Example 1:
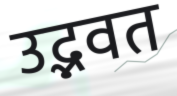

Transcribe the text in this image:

उद्भवत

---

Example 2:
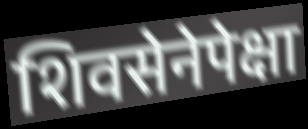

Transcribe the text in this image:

शिवसेनेपेक्षा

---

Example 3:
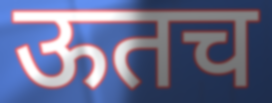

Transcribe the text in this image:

ऊतच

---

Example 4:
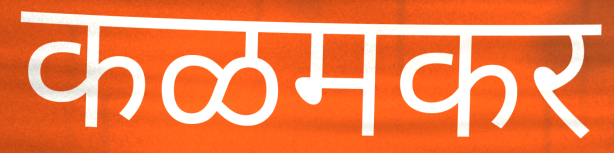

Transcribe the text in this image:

कळमकर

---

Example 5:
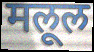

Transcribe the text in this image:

मलूल